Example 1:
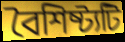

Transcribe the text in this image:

বৈশিষ্ট্যটি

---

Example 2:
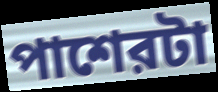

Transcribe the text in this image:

পাশেরটা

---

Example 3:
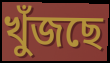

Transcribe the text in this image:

খুঁজছে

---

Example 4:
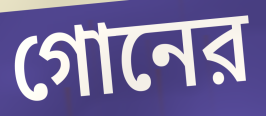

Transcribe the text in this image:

গোনের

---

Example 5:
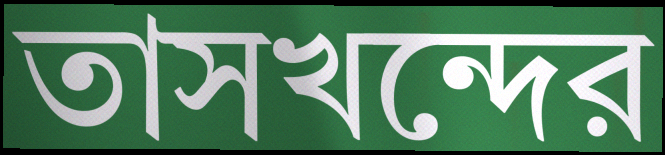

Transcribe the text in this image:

তাসখন্দের